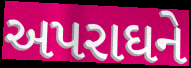
અપરાઘને